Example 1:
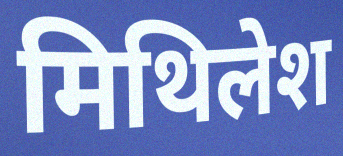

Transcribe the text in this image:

मिथिलेश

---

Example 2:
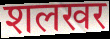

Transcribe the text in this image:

शलखर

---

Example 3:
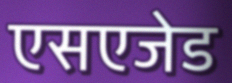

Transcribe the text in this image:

एसएजेड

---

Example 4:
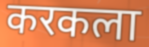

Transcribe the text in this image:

करकला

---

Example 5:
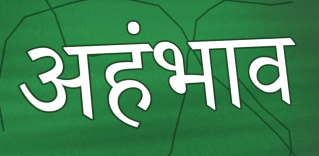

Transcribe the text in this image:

अहंभाव